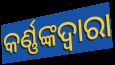
କର୍ଣ୍ଣଙ୍କଦ୍ୱାରା